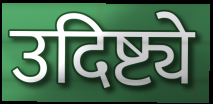
उदिष्ट्ये